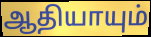
ஆதியாயும்